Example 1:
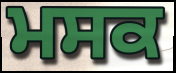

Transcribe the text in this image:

ਮਸਕ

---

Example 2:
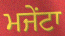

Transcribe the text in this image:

ਮਜੇਂਟਾ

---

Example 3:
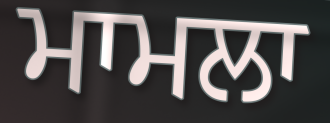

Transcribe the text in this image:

ਮਾਮਲਾ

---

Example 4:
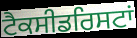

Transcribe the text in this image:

ਟੈਕਸੀਡਰਿਸਟਾਂ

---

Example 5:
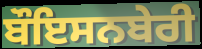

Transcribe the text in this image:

ਬੌਇਸਨਬੇਰੀ